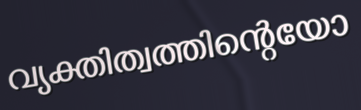
വ്യക്തിത്വത്തിന്റെയോ